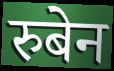
रुबेन